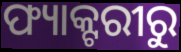
ଫ୍ୟାକ୍ଟରୀରୁ